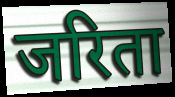
जरिता